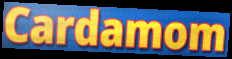
Cardamom